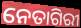
ନେତାଗିରୀ